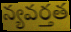
న్యవర్తత